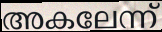
അകലേന്ന്